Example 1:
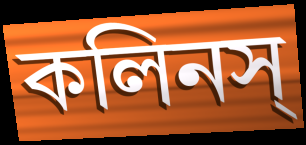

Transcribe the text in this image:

কলিনস্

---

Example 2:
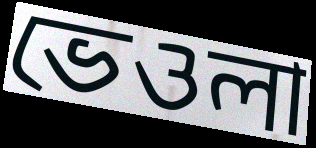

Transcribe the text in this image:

ভেওলা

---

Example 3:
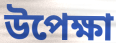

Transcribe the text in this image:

উপেক্ষা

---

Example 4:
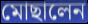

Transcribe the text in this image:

মোছালেন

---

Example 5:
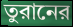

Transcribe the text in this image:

তুরানের